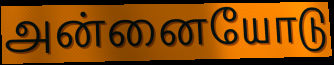
அன்னையோடு